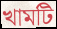
খামটি